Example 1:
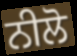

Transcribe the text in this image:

ਨੀਲੋ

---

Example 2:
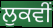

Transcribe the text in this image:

ਲੁਕਵੀਂ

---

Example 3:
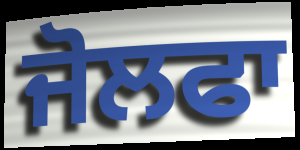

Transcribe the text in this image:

ਜੋਲਫਾ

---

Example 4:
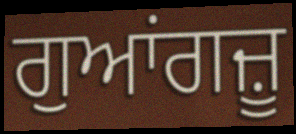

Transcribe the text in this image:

ਗੁਆਂਗਜ਼ੂ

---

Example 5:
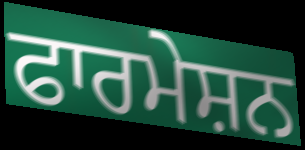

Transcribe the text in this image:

ਫਾਰਮੇਸ਼ਨ